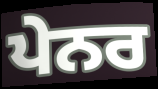
ਪੇਨਰ